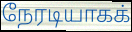
நேரடியாகக்